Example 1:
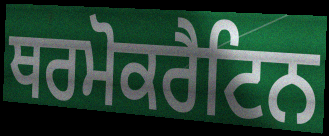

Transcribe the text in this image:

ਥਰਮੋਕਰੈਟਿਨ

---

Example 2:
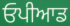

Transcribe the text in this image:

ਓਪੀਆਡ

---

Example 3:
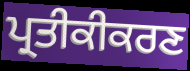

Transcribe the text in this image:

ਪ੍ਰਤੀਕੀਕਰਣ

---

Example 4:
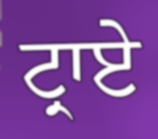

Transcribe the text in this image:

ਟ੍ਰਾਏ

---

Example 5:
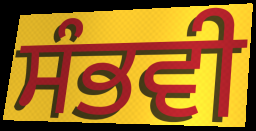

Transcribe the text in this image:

ਸੰਭਵੀ